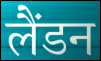
लैंडन